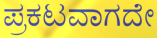
ಪ್ರಕಟವಾಗದೇ